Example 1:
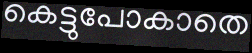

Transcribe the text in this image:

കെട്ടുപോകാതെ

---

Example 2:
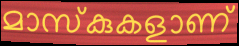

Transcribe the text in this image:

മാസ്കുകളാണ്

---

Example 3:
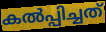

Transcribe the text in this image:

കൽപ്പിച്ചത്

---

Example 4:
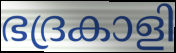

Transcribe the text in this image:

ഭദ്രകാളി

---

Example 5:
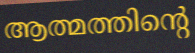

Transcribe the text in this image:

ആത്മത്തിന്റെ